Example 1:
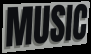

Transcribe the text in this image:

MUSIC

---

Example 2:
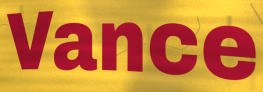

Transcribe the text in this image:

Vance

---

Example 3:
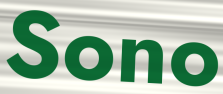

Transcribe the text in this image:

Sono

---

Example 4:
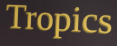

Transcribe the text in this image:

Tropics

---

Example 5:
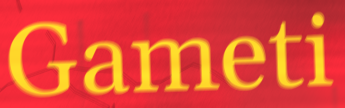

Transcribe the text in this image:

Gameti